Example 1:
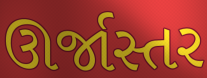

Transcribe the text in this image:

ઊર્જાસ્તર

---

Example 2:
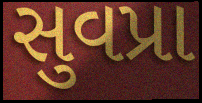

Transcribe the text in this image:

સુવપ્રા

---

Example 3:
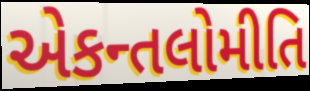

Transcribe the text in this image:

એકન્તલોમીતિ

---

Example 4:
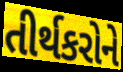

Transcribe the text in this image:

તીર્થકરોને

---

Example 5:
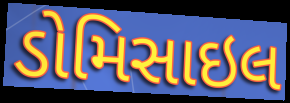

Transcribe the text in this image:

ડોમિસાઇલ